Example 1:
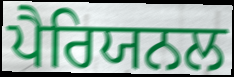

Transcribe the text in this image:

ਪੈਰਿਯਨਲ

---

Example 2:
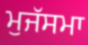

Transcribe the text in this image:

ਮੁਜੱਸਮਾ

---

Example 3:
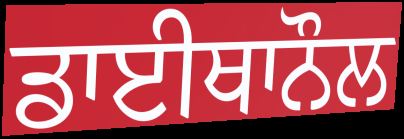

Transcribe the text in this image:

ਡਾਈਥਾਨੌਲ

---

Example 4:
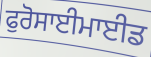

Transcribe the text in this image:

ਫੁਰੋਸਾਈਮਾਈਡ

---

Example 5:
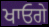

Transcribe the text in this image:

ਖਾਓਗੇ